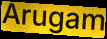
Arugam